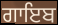
ਗਾਇਬ